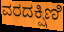
ವರದಕ್ಷಿಣಿ